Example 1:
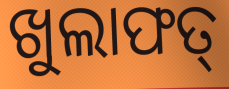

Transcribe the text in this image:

ଖୁଲାଫତ୍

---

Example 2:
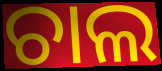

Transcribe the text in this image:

ଚାଲ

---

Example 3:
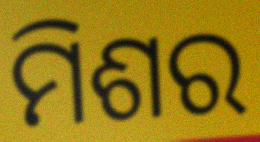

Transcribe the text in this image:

ମିଶର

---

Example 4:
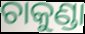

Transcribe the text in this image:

ଚାକୁଣ୍ଡା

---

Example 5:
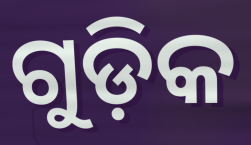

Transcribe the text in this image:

ଗୁଡ଼ିକ